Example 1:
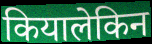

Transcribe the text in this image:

कियालेकिन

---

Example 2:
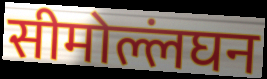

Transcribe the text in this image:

सीमोल्लंघन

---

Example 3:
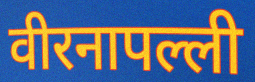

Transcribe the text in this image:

वीरनापल्ली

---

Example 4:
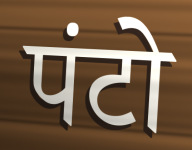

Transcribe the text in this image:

पंटो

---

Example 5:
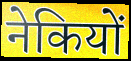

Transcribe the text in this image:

नेकियों